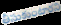
తీసుకుంటారని